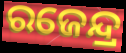
ରଜେନ୍ଦ୍ର